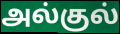
அல்குல்